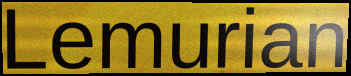
Lemurian